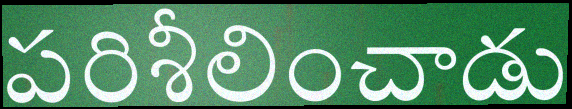
పరిశీలించాడు